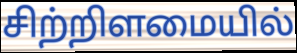
சிற்றிளமையில்